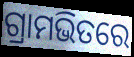
ଗ୍ରାମଭିତରେ